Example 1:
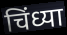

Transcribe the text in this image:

चिंध्या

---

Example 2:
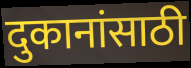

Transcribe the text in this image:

दुकानांसाठी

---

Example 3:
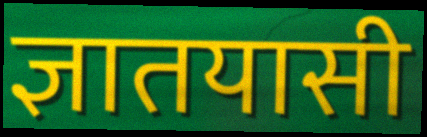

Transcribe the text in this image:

ज्ञातयासी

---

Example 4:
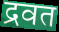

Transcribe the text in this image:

द्रवत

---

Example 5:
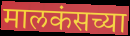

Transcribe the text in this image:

मालकंसच्या